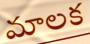
మాలక